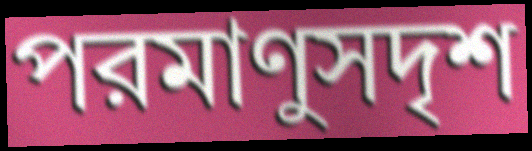
পরমাণুসদৃশ